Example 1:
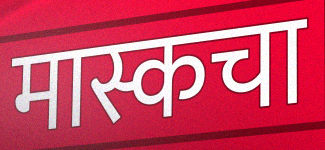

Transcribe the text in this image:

मास्कचा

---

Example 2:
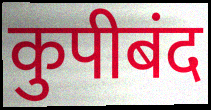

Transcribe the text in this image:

कुपीबंद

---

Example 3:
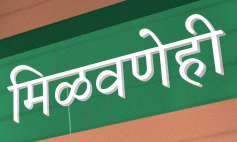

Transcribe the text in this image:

मिळवणेही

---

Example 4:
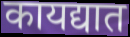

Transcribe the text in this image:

कायद्यात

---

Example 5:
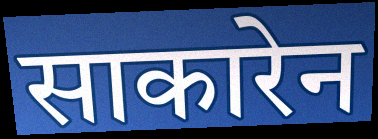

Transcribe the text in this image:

साकारेन